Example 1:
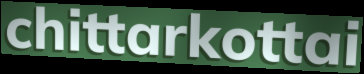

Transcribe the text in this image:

chittarkottai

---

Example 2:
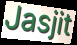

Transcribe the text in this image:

Jasjit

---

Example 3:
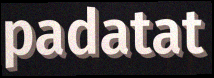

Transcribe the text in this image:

padatat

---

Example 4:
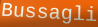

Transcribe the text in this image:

Bussagli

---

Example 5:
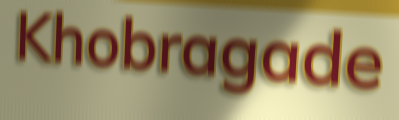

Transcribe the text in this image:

Khobragade